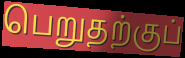
பெறுதற்குப்